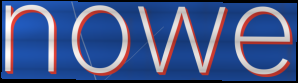
nowe